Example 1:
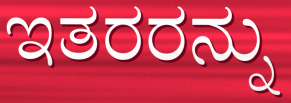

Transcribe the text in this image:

ಇತರರನ್ನು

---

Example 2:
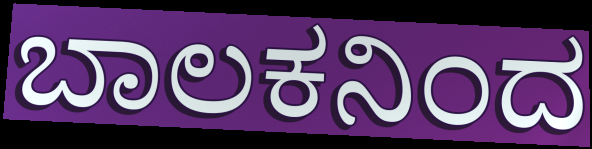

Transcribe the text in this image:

ಬಾಲಕನಿಂದ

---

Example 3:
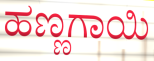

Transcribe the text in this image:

ಹಣ್ಣಗಾಯಿ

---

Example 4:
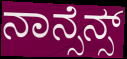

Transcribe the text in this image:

ನಾನ್ಸೆನ್ಸ್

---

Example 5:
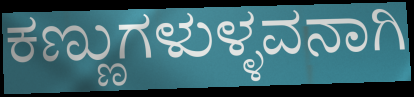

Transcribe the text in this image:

ಕಣ್ಣುಗಳುಳ್ಳವನಾಗಿ